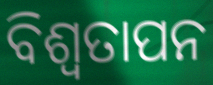
ବିଶ୍ବତାପନ